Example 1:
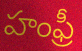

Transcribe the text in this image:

హంఫ్రీ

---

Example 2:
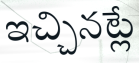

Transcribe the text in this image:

ఇచ్చినట్లే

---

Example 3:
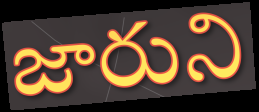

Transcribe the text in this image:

జారుని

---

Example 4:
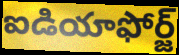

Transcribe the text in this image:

ఐడియాఫోర్జ్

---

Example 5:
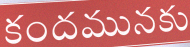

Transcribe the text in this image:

కందమునకు